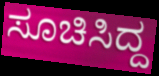
ಸೂಚಿಸಿದ್ದ